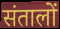
संतालों